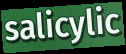
salicylic